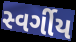
સ્વર્ગીય